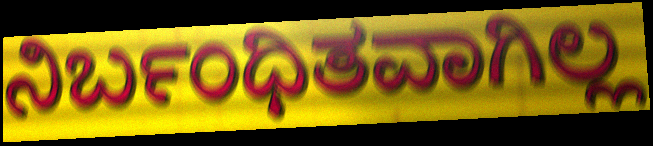
ನಿರ್ಬಂಧಿತವಾಗಿಲ್ಲ